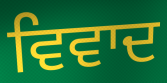
ਵਿਵਾਦ